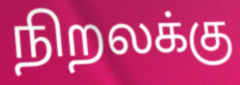
நிறலக்கு